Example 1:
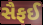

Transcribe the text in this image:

સૈફઈ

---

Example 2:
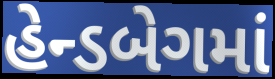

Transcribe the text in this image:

હેન્ડબેગમાં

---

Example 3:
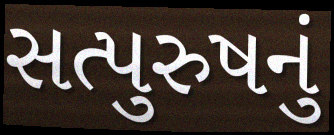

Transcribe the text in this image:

સત્પુરુષનું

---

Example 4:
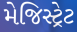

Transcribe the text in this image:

મેજિસ્ટ્રેટ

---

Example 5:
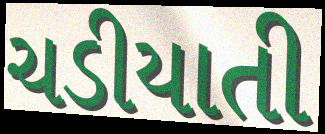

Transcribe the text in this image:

ચડીયાતી